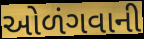
ઓળંગવાની